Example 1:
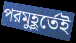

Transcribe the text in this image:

পরমুহূর্তেই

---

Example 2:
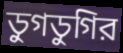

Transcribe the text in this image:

ডুগডুগির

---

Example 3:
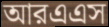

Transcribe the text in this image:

আরএএস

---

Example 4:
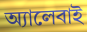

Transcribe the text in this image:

অ্যালেবাই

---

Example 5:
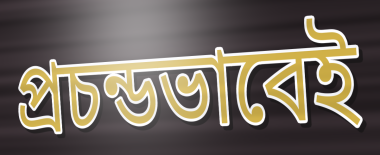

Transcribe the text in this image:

প্রচন্ডভাবেই